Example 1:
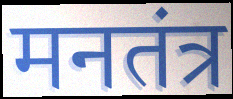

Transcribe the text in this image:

मनतंत्र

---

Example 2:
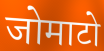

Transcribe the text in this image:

जोमाटो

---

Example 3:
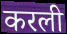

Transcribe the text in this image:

करली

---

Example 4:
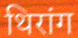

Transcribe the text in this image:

थिरांग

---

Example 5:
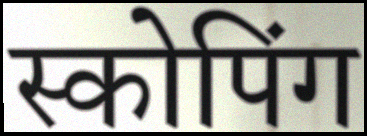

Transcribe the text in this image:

स्कोपिंग